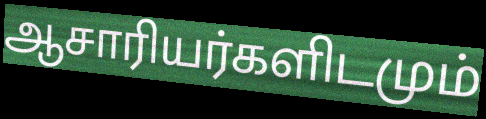
ஆசாரியர்களிடமும்